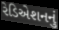
રેડિએશનનું